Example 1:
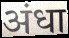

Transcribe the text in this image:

अंधा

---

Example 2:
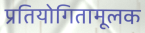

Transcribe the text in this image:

प्रतियोगितामूलक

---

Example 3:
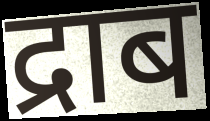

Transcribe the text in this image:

द्राब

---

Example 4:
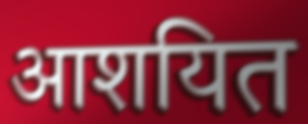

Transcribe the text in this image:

आशयित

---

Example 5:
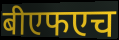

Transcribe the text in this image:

बीएफएच